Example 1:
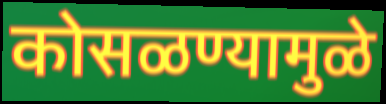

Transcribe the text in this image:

कोसळण्यामुळे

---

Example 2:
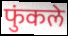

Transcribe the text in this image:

फुंकले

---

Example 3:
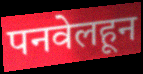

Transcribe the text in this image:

पनवेलहून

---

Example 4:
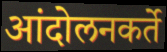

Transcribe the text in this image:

आंदोलनकर्ते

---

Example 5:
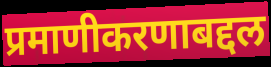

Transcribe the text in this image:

प्रमाणीकरणाबद्दल